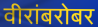
वीरांबरोबर